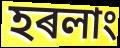
হৰলাং